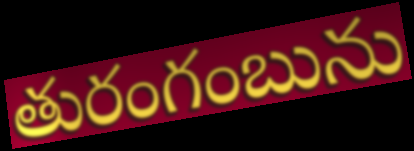
తురంగంబును